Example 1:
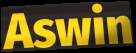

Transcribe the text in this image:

Aswin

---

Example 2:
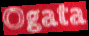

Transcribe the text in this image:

Ogata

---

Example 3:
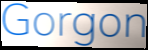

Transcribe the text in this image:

Gorgon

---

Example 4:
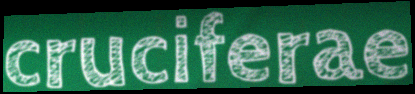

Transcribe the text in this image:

cruciferae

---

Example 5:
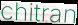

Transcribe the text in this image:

chitran